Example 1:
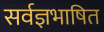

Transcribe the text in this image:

सर्वज्ञभाषित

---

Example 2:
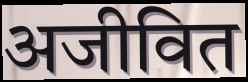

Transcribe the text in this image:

अजीवित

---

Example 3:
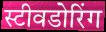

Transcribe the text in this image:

स्टीवडोरिंग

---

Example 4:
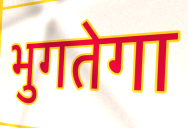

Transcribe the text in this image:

भुगतेगा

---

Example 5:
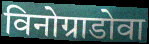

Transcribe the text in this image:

विनोग्राडोवा